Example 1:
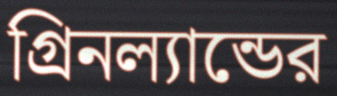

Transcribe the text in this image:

গ্রিনল্যান্ডের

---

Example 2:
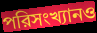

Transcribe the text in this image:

পরিসংখ্যানও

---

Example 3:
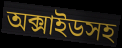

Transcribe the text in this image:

অক্সাইডসহ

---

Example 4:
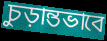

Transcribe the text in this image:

চুড়ান্তভাবে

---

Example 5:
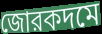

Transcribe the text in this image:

জোরকদমে